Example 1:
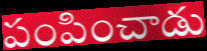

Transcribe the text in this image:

పంపించాడు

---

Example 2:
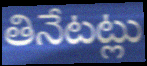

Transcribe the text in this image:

తినేటట్లు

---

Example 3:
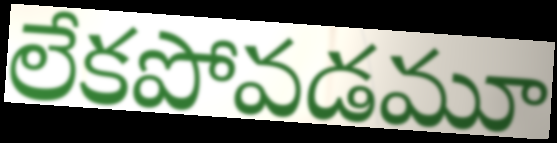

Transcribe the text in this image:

లేకపోవడమూ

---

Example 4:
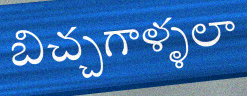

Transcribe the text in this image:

బిచ్చగాళ్ళలా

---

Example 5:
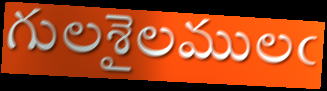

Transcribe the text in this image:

గులశైలములఁ